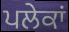
ਪਲੇਕਾਂ